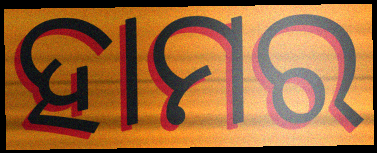
ହାମର